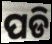
ପଡି